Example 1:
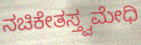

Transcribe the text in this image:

ನಚಿಕೇತಸ್ತ್ವಮೇಧಿ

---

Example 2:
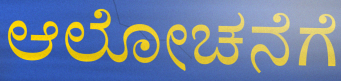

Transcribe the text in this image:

ಆಲೋಚನೆಗೆ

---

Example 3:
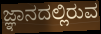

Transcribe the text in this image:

ಜ್ಞಾನದಲ್ಲಿರುವ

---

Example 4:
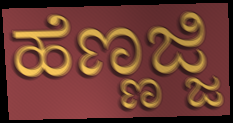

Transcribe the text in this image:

ಹೆಣ್ಣಜ್ಜಿ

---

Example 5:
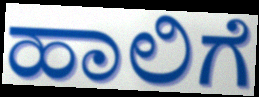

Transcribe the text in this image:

ಹಾಲಿಗೆ